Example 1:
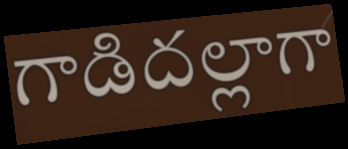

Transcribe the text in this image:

గాడిదల్లాగా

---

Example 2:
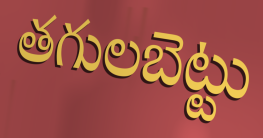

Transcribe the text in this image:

తగులబెట్టు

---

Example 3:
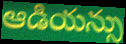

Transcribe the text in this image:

ఆడియన్సు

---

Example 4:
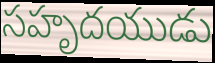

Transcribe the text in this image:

సహృదయుడు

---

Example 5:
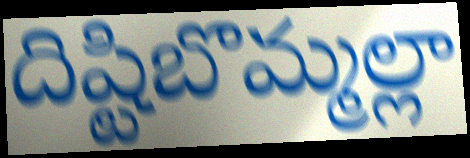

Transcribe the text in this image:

దిష్టిబొమ్మల్లా